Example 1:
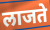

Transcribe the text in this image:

लाजते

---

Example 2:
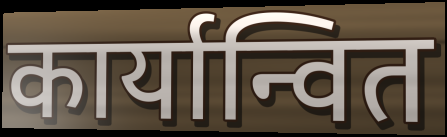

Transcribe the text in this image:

कार्यान्वित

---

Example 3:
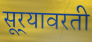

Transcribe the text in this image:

सूर्यावरती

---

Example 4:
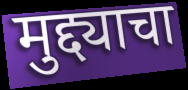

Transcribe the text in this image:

मुद्द्याचा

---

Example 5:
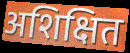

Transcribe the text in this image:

अशिक्षित